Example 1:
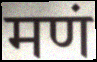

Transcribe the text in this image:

मणं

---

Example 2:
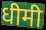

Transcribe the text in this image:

धीमी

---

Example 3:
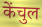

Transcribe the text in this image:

केंचुल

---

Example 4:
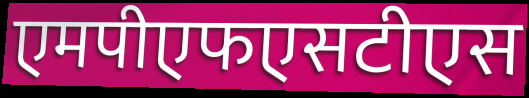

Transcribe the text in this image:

एमपीएफएसटीएस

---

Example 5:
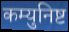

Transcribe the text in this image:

कम्युनिष्ट